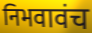
निभवावंच